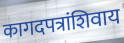
कागदपत्रांशिवाय